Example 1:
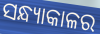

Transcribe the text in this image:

ସନ୍ଧ୍ୟାକାଳର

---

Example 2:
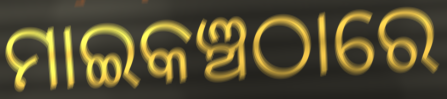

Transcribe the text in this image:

ମାଇକଞ୍ଚଠାରେ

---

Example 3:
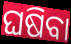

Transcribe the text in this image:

ଘଷିବା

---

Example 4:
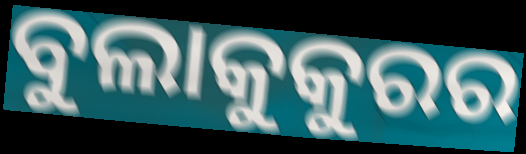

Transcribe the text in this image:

ବୁଲାକୁକୁରର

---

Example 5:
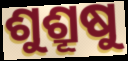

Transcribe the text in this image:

ଶୁଶ୍ରୂଷୁ